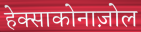
हेक्साकोनाज़ोल